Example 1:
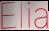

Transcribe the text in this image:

Elia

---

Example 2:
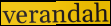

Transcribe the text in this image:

verandah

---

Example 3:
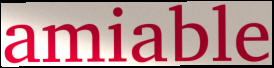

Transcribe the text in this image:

amiable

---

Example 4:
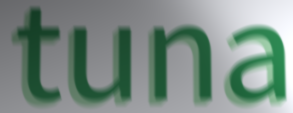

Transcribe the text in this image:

tuna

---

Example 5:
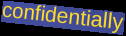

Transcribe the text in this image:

confidentially